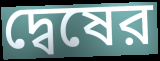
দ্বেষের